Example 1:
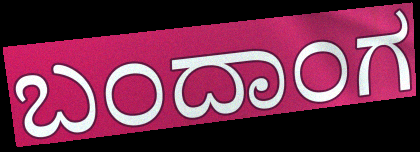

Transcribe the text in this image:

ಬಂದಾಂಗ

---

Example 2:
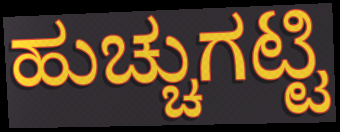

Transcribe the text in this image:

ಹುಚ್ಚುಗಟ್ಟಿ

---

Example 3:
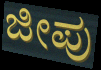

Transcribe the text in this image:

ಜೀಪು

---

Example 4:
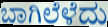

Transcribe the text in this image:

ಬಾಗಿಲೆಳೆದು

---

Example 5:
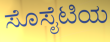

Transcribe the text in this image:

ಸೊಸೈಟಿಯ